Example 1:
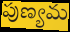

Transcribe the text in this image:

పుణ్యమ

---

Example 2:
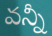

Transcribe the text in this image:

వన్నీ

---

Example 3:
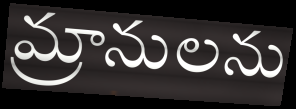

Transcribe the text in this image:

మ్రానులను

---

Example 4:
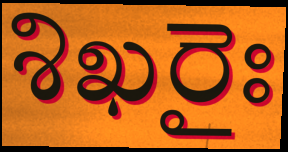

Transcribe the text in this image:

శిఖరైః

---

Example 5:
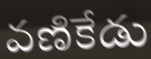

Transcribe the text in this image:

వణికేడు